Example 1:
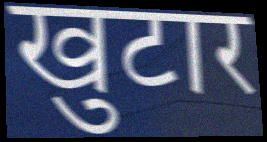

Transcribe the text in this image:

खुटार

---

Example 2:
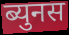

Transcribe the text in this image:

ब्युनस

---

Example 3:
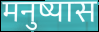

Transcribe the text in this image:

मनुष्यास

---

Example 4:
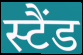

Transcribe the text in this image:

स्‍टैंड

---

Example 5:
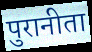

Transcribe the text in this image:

पुरानीता